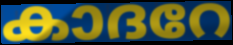
കാദറേ